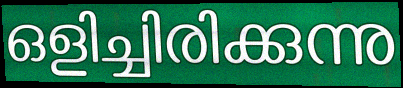
ഒളിച്ചിരിക്കുന്നു